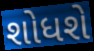
શોધશે